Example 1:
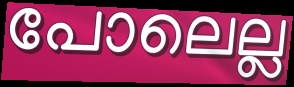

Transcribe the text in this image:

പോലെല്ല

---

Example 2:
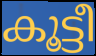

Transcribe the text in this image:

കൂട്ടീ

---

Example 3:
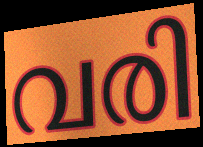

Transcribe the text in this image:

വരി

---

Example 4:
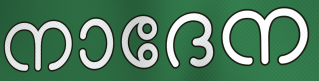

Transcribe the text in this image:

നാദേന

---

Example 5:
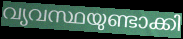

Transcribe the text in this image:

വ്യവസ്ഥയുണ്ടാക്കി